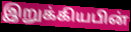
இறுக்கியபின்